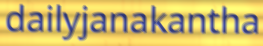
dailyjanakantha